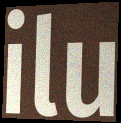
ilu